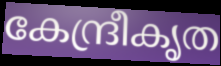
കേന്ദ്രീകൃത